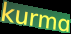
kurma